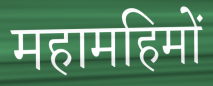
महामहिमों